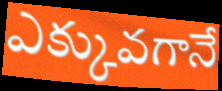
ఎక్కువగానే